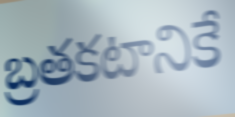
బ్రతకటానికే